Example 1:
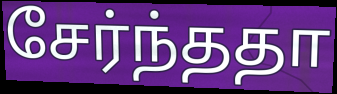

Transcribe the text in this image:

சேர்ந்ததா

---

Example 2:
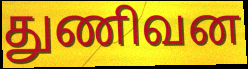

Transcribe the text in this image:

துணிவன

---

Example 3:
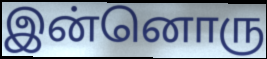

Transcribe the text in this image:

இன்னொரு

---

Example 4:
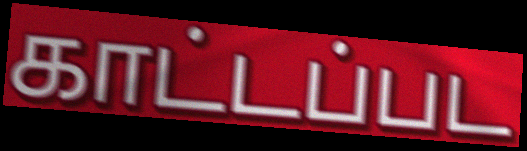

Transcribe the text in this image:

காட்டப்பட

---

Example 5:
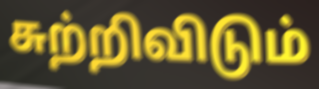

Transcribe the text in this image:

சுற்றிவிடும்